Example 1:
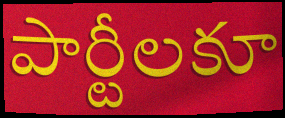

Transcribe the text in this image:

పార్టీలకూ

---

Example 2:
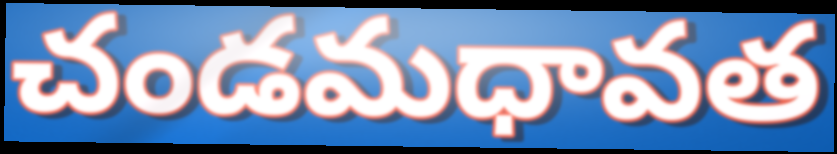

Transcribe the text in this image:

చండమధావత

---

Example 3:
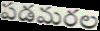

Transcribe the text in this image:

పడమరల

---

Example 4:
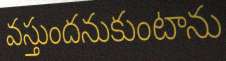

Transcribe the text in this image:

వస్తుందనుకుంటాను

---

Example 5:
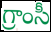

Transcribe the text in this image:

గ్రాంసీ